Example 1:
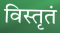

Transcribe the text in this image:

विस्तृतं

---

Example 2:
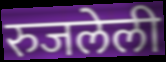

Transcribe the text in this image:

रुजलेली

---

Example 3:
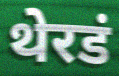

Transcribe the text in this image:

थेरडं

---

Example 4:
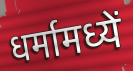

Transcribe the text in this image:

धर्मामध्यें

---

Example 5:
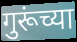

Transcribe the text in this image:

गुरूंच्या